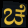
ಚೆ